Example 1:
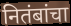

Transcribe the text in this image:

नितंबांचा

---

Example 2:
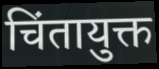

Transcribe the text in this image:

चिंतायुक्त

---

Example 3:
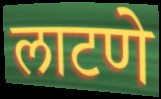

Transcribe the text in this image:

लाटणे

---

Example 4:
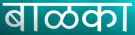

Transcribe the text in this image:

बाळका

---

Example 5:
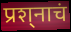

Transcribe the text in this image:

प्रश्नाचं